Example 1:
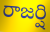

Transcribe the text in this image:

రాజర్షి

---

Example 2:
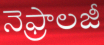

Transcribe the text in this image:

నెఫ్రాలజీ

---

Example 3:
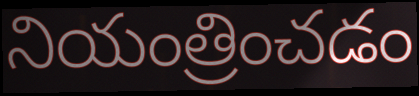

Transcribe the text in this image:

నియంత్రించడం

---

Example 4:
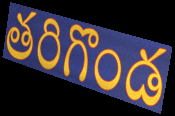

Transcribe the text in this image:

తరిగొండ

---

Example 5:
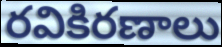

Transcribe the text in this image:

రవికిరణాలు